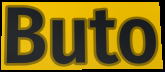
Buto